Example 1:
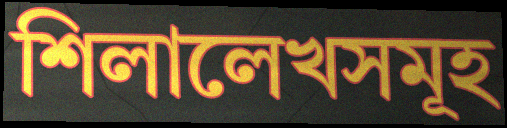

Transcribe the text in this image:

শিলালেখসমূহ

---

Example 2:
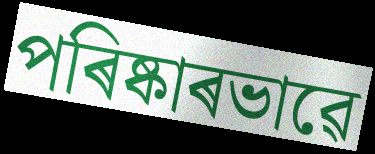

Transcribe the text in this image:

পৰিষ্কাৰভাৱে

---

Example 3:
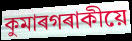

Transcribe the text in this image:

কুমাৰগৰাকীয়ে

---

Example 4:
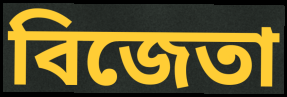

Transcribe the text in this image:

বিজেতা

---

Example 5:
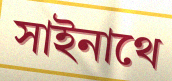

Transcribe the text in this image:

সাইনাথে